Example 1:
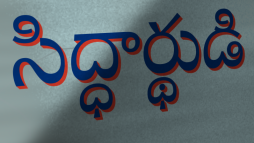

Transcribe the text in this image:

సిద్ధార్థుడి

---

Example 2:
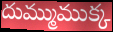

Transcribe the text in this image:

దుమ్ముముక్క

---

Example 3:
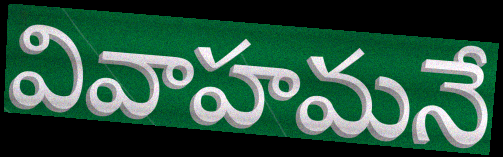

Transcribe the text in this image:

వివాహమనే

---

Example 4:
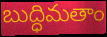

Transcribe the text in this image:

బుద్ధిమతాం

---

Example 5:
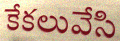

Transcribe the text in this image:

కేకలువేసి